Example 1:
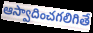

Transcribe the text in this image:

ఆస్వాదించగలిగితే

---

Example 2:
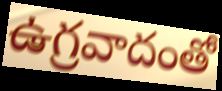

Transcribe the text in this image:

ఉగ్రవాదంతో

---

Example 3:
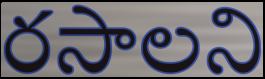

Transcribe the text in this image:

రసాలని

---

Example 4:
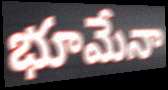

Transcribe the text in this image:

భూమేనా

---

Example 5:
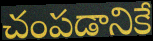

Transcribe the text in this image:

చంపడానికే